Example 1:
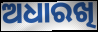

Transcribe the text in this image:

ଅଧାରଖି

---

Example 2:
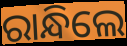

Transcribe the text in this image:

ରାନ୍ଧିଲେ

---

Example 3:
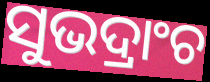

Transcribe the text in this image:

ସୁଭଦ୍ରାଂଚ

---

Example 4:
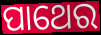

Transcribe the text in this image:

ପାଥେର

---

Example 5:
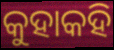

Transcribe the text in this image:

କୁହାକହି